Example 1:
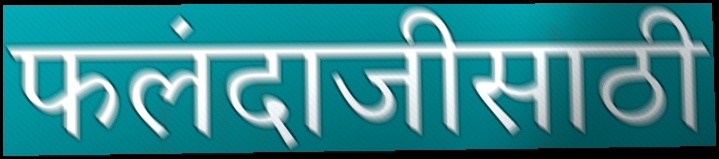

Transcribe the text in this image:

फलंदाजीसाठी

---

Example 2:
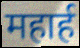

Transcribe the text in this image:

महार्ह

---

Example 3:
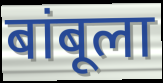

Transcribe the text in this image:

बांबूला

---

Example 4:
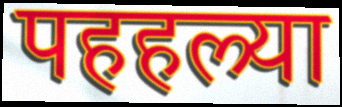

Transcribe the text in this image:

पहहल्या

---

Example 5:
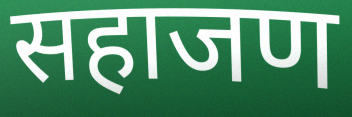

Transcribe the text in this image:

सहाजण